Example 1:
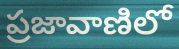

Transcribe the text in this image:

ప్రజావాణిలో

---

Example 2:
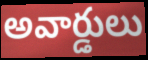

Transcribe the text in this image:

అవార్డులు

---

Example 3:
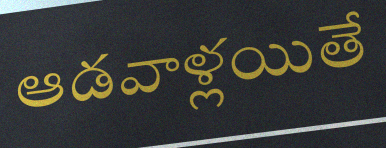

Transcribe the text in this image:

ఆడవాళ్లయితే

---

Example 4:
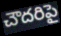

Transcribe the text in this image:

చౌదరిపై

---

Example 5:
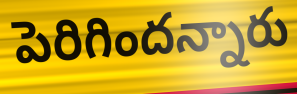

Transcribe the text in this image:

పెరిగిందన్నారు